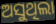
ଅସୁଥିଲା